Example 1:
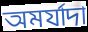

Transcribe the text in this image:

অমর্যাদা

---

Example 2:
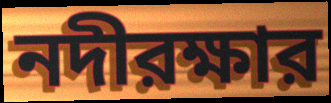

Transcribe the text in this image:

নদীরক্ষার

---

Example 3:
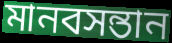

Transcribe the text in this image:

মানবসন্তান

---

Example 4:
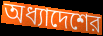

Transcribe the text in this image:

অধ্যাদেশের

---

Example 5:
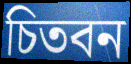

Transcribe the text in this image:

চিতবন